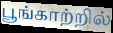
பூங்காற்றில்